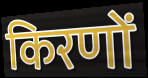
किरणों